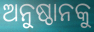
ଅନୁଷ୍ଠାନକୁ